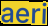
aeri